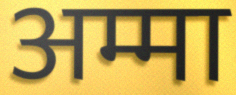
अम्मा